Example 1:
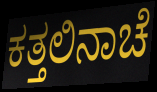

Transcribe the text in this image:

ಕತ್ತಲಿನಾಚೆ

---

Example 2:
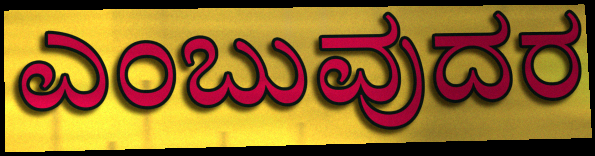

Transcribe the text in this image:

ಎಂಬುವುದರ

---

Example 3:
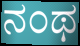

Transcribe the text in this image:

ನಂಥ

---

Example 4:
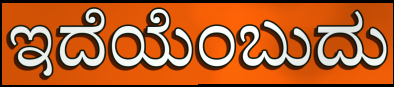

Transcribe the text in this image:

ಇದೆಯೆಂಬುದು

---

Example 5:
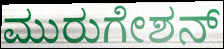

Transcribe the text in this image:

ಮುರುಗೇಶನ್